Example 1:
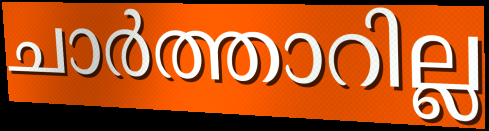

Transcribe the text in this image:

ചാർത്താറില്ല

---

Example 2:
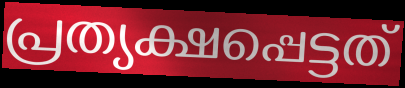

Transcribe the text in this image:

പ്രത്യക്ഷപ്പെട്ടത്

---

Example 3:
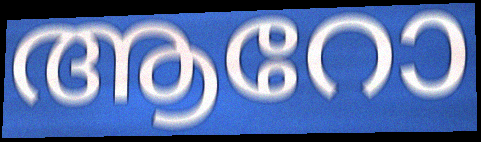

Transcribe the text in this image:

ആറോ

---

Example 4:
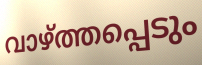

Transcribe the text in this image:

വാഴ്ത്തപ്പെടും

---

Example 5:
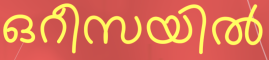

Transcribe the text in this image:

ഒറീസയിൽ